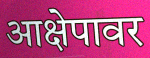
आक्षेपावर